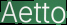
Aetto